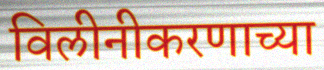
विलीनीकरणाच्या